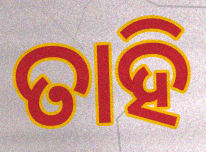
ତାହି